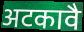
अटकावै